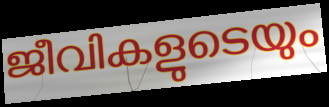
ജീവികളുടെയും